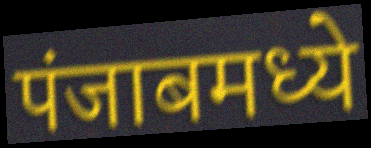
पंजाबमध्ये